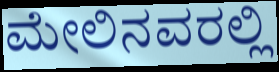
ಮೇಲಿನವರಲ್ಲಿ